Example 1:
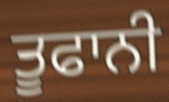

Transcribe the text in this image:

ਤੂਫਾਨੀ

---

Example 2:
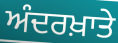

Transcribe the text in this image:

ਅੰਦਰਖ਼ਾਤੇ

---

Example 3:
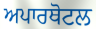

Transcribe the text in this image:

ਅਪਾਰਥੋਟਲ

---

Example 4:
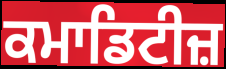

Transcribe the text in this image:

ਕਮਾਡਿਟੀਜ਼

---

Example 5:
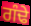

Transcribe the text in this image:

ਗੰਢੇ